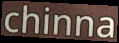
chinna